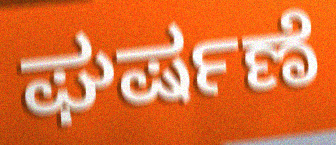
ಘರ್ಷಣೆ